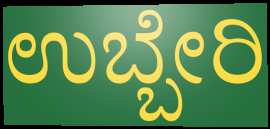
ಉಬ್ಬೇರಿ